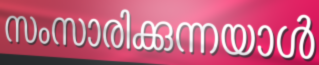
സംസാരിക്കുന്നയാൾ